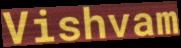
Vishvam